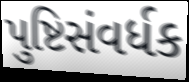
પુષ્ટિસંવર્ધક